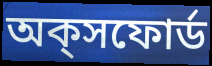
অক্‌সফোর্ড